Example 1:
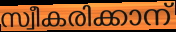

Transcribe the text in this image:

സ്വീകരിക്കാന്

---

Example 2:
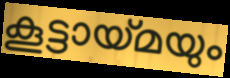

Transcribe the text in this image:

കൂട്ടായ്മയും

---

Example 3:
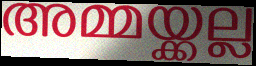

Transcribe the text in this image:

അമ്മയ്ക്കല്ല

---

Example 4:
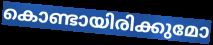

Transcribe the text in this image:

കൊണ്ടായിരിക്കുമോ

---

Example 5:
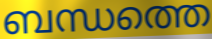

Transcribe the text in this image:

ബന്ധത്തെ